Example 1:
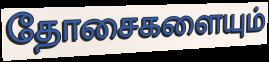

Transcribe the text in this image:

தோசைகளையும்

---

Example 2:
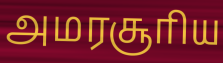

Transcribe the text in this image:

அமரசூரிய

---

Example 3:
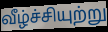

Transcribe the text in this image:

வீழ்ச்சியுற்று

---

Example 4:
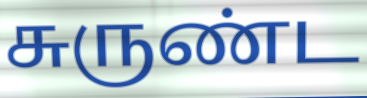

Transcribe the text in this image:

சுருண்ட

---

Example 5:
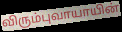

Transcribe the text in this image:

விரும்புவாயாயின்